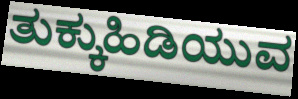
ತುಕ್ಕುಹಿಡಿಯುವ